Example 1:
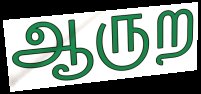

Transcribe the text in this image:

ஆருற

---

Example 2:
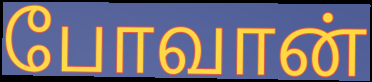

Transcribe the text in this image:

போவான்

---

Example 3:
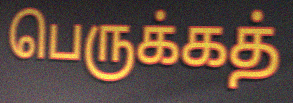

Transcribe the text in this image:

பெருக்கத்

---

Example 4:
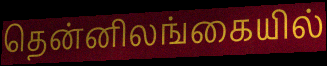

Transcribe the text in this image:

தென்னிலங்கையில்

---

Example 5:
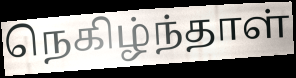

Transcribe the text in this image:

நெகிழ்ந்தாள்